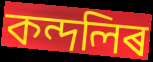
কন্দলিৰ